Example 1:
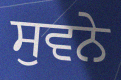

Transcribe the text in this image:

ਸੁਵਨੇ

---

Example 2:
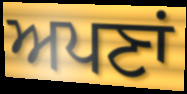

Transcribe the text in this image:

ਅਪਣਾਂ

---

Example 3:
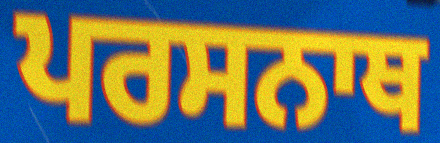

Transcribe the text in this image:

ਪਰਸਨਾਥ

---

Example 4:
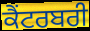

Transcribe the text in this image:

ਕੈਂਟਰਬਰੀ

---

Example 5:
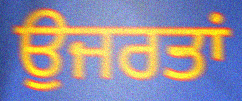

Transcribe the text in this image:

ਉਜਰਤਾਂ